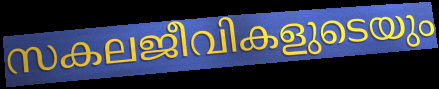
സകലജീവികളുടെയും